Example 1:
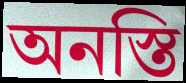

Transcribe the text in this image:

অনস্তি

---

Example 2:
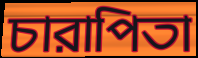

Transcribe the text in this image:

চারাপিতা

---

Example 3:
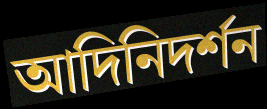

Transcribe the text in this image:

আদিনিদর্শন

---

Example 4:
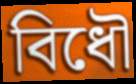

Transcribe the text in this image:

বিধৌ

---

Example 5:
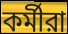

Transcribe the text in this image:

কর্মীরা